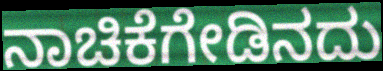
ನಾಚಿಕೆಗೇಡಿನದು